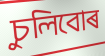
চুলিবোৰ